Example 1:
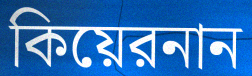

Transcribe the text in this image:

কিয়েরনান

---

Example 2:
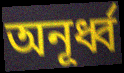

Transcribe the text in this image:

অনূর্ধ্ব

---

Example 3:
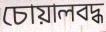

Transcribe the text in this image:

চোয়ালবদ্ধ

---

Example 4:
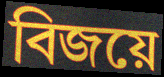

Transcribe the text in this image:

বিজয়ে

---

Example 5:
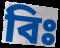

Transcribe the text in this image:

বিঃ